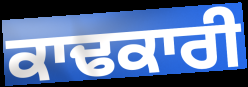
ਕਾਢਕਾਰੀ